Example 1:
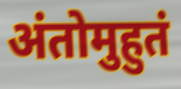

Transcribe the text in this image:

अंतोमुहुतं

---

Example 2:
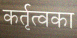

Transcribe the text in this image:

कर्तृत्वका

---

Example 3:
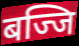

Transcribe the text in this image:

बज्जि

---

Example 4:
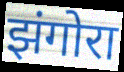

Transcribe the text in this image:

झंगोरा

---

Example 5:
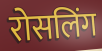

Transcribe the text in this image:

रोसलिंग